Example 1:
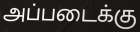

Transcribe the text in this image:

அப்படைக்கு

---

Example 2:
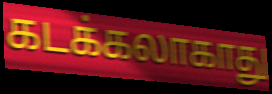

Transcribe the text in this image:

கடக்கலாகாது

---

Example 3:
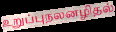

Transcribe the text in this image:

உறுப்புநலனழிதல்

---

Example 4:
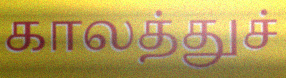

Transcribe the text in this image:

காலத்துச்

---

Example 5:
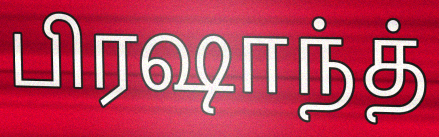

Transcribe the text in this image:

பிரஷாந்த்